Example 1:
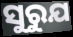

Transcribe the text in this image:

ସୁରୁଯ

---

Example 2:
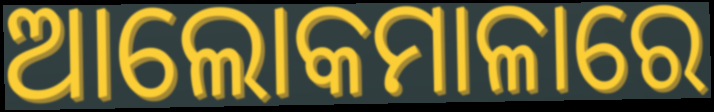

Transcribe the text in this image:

ଆଲୋକମାଳାରେ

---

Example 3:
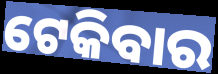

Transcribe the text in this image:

ଟେକିବାର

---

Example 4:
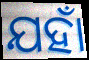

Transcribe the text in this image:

ଯହାଁ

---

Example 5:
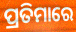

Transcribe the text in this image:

ପ୍ରତିମାରେ